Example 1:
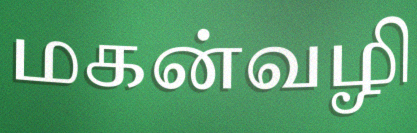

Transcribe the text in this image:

மகன்வழி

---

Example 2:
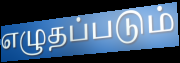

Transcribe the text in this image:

எழுதப்படும்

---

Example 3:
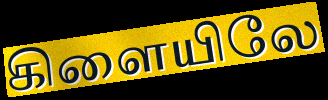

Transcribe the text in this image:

கிளையிலே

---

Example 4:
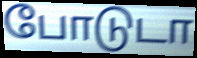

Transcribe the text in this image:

போடுடா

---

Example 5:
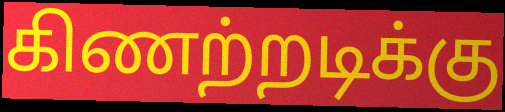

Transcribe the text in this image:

கிணற்றடிக்கு